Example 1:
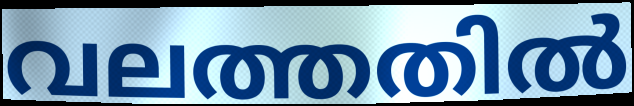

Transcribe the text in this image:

വലത്തതിൽ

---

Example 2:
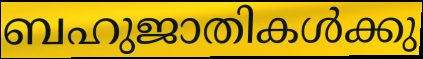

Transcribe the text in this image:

ബഹുജാതികൾക്കു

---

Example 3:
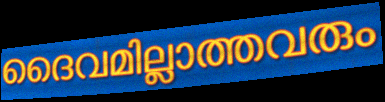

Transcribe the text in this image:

ദൈവമില്ലാത്തവരും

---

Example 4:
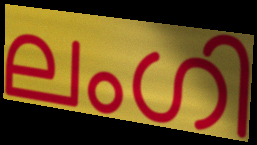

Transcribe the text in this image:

ലംഗി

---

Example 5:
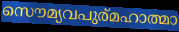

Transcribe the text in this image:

സൌമ്യവപുര്മഹാത്മാ